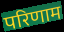
परिणाम